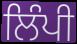
ਲਿੰਪੀ